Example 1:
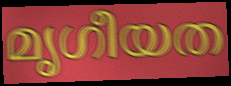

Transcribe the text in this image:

മൃഗീയത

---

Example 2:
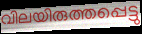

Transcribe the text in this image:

വിലയിരുത്തപ്പെട്ടു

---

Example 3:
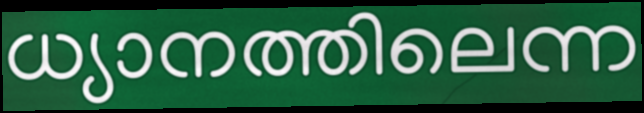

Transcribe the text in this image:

ധ്യാനത്തിലെന്ന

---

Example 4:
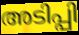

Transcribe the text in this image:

അടിപ്പി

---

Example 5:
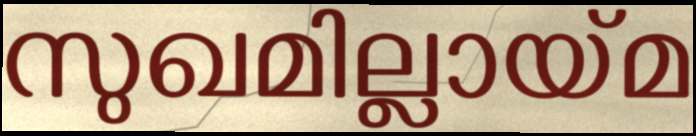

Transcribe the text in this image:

സുഖമില്ലായ്മ